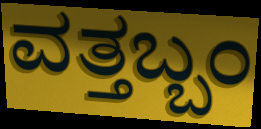
ವತ್ತಬ್ಬಂ